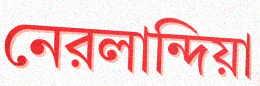
নেরলান্দিয়া